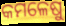
କମଳେଷୁ